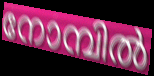
നോമ്പിൽ